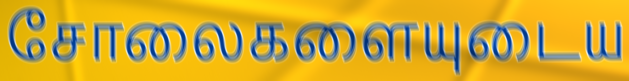
சோலைகளையுடைய